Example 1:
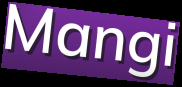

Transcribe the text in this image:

Mangi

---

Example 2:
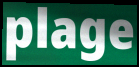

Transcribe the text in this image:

plage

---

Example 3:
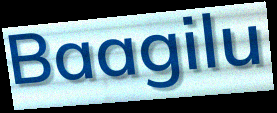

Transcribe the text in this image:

Baagilu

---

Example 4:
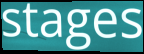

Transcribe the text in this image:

stages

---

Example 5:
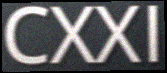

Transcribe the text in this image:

CXXI